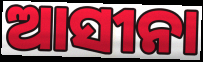
ଆସୀନା